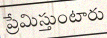
ప్రేమిస్తుంటారు